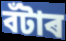
বঁটাৰ